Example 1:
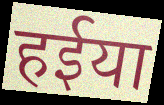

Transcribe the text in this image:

हईया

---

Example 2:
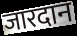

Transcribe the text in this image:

जारदान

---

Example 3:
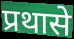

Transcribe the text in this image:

प्रथासे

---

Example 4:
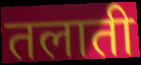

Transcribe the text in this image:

तलाती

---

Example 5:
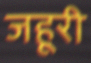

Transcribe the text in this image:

जहूरी